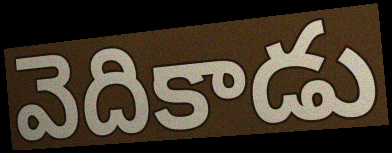
వెదికాడు